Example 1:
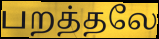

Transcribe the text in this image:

பறத்தலே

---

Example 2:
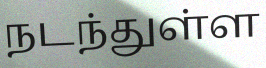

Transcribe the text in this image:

நடந்துள்ள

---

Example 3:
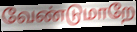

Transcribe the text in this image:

வேண்டுமாறே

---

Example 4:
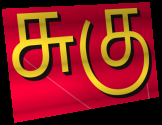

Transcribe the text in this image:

சுகு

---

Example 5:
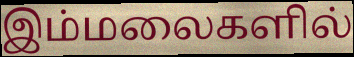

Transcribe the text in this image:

இம்மலைகளில்